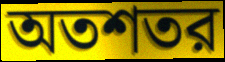
অতশতর